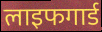
लाइफगार्ड